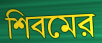
শিবমের